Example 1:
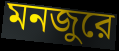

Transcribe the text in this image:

মনজুরে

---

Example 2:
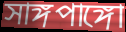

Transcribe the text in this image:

সাঙ্গপাঙ্গো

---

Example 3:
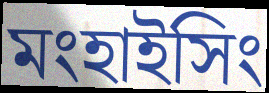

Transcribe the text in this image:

মংহাইসিং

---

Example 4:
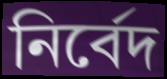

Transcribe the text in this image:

নির্বেদ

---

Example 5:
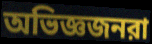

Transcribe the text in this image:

অভিজ্ঞজনরা